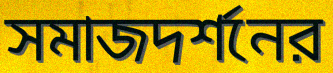
সমাজদর্শনের